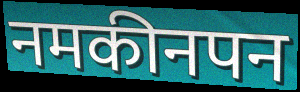
नमकीनपन